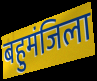
बहुमंजिला